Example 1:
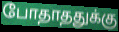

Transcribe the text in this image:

போதாததுக்கு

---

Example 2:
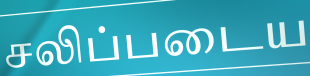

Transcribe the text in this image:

சலிப்படைய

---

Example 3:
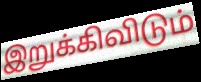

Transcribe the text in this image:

இறுக்கிவிடும்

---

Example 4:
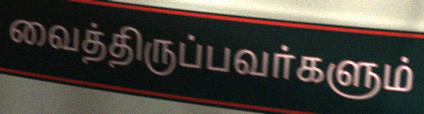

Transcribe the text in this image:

வைத்திருப்பவர்களும்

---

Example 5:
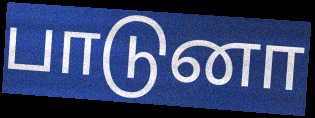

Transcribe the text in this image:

பாடுனா